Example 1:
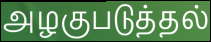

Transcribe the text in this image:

அழகுபடுத்தல்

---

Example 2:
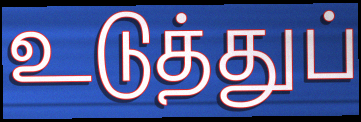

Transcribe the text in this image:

உடுத்துப்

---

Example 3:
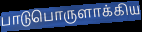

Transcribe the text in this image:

பாடுபொருளாக்கிய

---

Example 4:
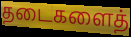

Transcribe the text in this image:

தடைகளைத்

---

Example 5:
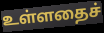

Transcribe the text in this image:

உள்ளதைச்